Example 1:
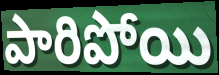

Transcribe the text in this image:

పారిపోయి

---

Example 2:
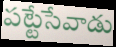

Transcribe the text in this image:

పట్టేసేవాడు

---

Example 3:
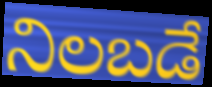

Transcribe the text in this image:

నిలబడే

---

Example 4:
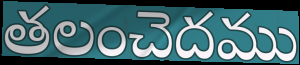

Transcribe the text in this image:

తలంచెదము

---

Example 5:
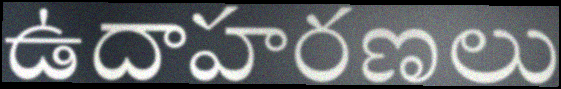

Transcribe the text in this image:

ఉదాహరణలు